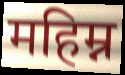
महिम्न